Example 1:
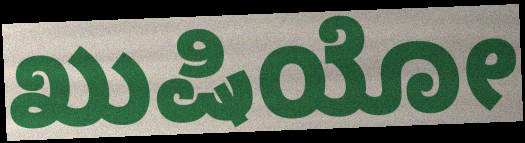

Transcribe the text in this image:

ಖುಷಿಯೋ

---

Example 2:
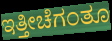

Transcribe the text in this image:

ಇತ್ತೀಚೆಗಂತೂ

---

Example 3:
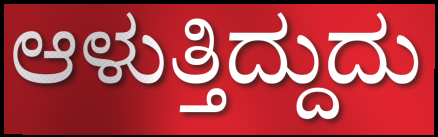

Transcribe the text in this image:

ಆಳುತ್ತಿದ್ದುದು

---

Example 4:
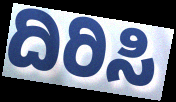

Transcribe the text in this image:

ದಿರಿಸಿ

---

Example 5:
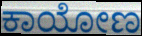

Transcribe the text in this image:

ಕಾಯೋಣ